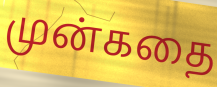
முன்கதை